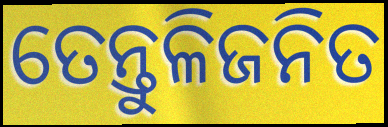
ତେନ୍ତୁଳିଜନିତ